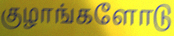
குழாங்களோடு